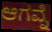
ಆಗವ್ನೆ